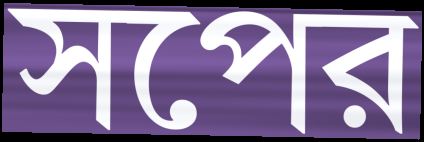
সপের